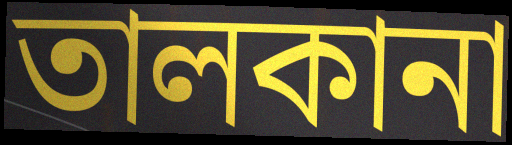
তালকানা